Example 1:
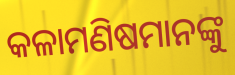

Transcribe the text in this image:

କଳାମଣିଷମାନଙ୍କୁ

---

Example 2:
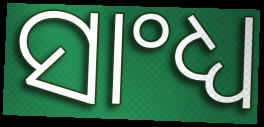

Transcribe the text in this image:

ସାଂଧ୍ୟ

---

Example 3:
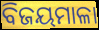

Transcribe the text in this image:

ବିଜୟମାଳା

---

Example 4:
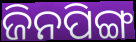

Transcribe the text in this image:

ଜିନପିଙ୍ଗ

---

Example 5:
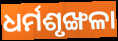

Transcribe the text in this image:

ଧର୍ମଶୃଙ୍ଖଳା